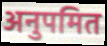
अनुपमित